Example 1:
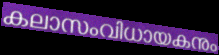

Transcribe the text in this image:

കലാസംവിധായകനും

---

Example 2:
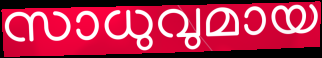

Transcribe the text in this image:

സാധുവുമായ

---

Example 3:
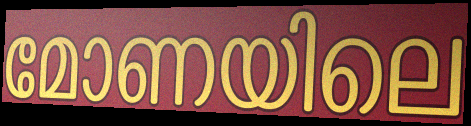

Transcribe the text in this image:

മോണയിലെ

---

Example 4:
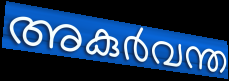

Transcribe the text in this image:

അകുർവന്ത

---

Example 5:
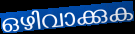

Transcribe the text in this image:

ഒഴിവാക്കുക